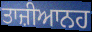
ਤਾਜ਼ੀਆਨਹ